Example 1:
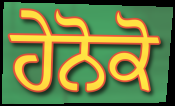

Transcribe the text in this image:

ਹੇਨੋਕੋ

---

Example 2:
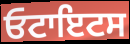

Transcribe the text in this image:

ਓਟਾਇਟਸ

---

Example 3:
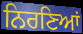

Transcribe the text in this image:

ਨਿਰਣਿਆਂ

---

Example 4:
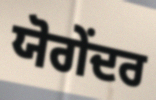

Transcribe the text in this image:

ਯੋਗੇਂਦਰ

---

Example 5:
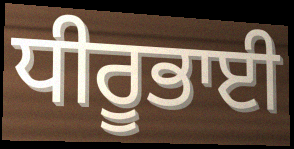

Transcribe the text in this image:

ਧੀਰੂਭਾਈ